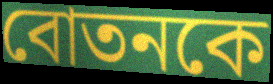
বোতনকে